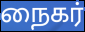
நைகர்